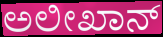
ಅಲೀಖಾನ್